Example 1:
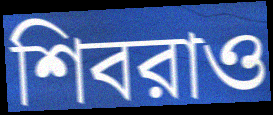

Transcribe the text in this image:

শিবরাও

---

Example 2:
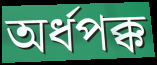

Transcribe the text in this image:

অর্ধপক্ক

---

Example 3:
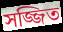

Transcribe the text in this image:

সজ্জিত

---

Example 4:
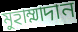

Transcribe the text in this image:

মুহাম্মাদান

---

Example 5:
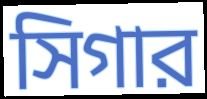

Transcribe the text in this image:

সিগার